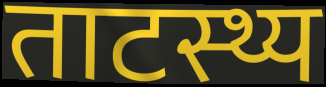
ताटस्थ्य